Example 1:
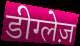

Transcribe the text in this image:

डीग्लेज़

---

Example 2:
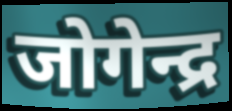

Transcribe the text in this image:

जोगेन्द्र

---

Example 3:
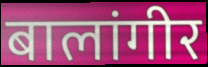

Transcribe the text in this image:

बालांगीर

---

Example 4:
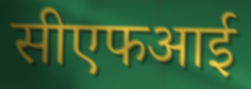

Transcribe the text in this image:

सीएफआई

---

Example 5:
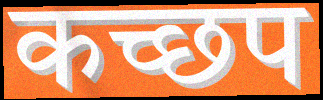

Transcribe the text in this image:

कच्छप